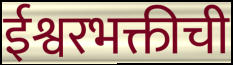
ईश्वरभक्तीची